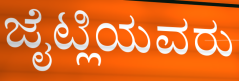
ಜೈಟ್ಲಿಯವರು